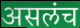
असलंच